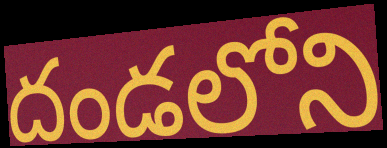
దండలోని